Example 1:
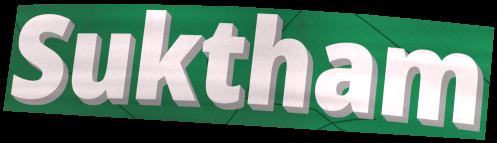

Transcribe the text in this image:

Suktham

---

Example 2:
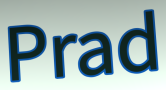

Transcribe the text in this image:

Prad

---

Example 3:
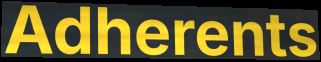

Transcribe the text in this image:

Adherents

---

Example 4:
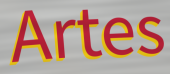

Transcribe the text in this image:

Artes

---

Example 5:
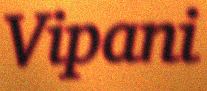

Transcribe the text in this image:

Vipani